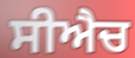
ਸੀਐਚ